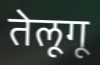
तेलूगू